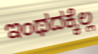
ಇಂಥದಕ್ಕೆಲ್ಲ